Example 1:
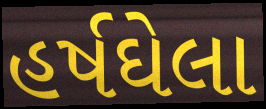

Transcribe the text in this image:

હર્ષઘેલા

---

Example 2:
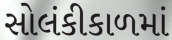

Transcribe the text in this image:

સોલંકીકાળમાં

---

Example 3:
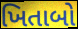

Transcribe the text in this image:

ખિતાબો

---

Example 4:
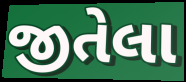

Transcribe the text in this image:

જીતેલા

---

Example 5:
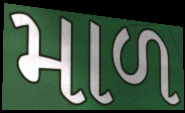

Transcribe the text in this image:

માળ